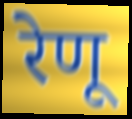
रेणू